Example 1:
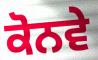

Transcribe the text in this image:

ਕੋਨਵੇ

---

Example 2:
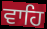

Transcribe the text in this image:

ਵਾਹਿ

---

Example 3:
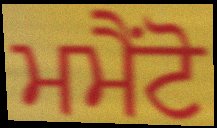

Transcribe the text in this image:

ਮਮੈਂਟੋ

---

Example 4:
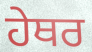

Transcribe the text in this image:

ਹੇਥਰ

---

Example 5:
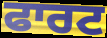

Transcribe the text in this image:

ਫਾਰਟ